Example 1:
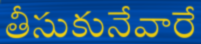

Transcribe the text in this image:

తీసుకునేవారే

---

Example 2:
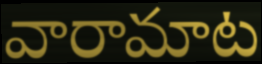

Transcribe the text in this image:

వారామాట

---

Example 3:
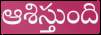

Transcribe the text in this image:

ఆశిస్తుంది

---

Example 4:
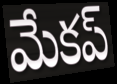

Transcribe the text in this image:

మేకప్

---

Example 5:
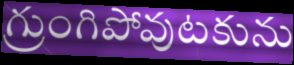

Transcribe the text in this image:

గ్రుంగిపోవుటకును